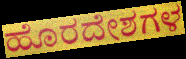
ಹೊರದೇಶಗಳ